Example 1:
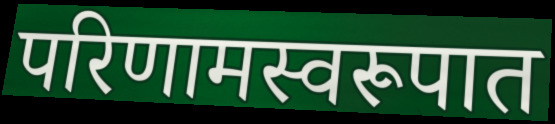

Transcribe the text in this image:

परिणामस्वरूपात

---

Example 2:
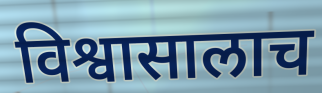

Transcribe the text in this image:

विश्वासालाच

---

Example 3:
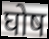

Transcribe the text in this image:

घोष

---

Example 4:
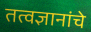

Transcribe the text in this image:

तत्वज्ञानांचे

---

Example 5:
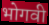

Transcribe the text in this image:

भोगवी